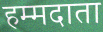
हम्मदाता